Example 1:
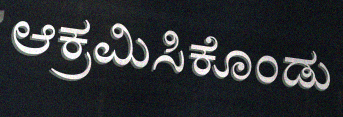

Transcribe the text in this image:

ಆಕ್ರಮಿಸಿಕೊಂಡು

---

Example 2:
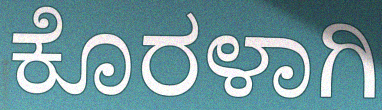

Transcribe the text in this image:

ಕೊರಳಾಗಿ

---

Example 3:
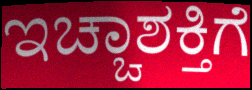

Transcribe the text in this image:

ಇಚ್ಚಾಶಕ್ತಿಗೆ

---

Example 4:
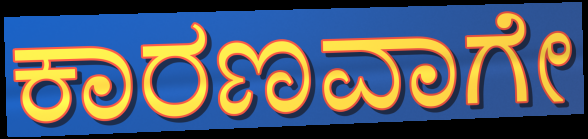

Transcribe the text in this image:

ಕಾರಣವಾಗೇ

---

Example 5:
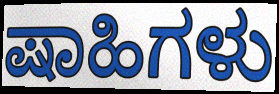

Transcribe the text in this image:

ಷಾಹಿಗಳು